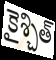
కైశ్చిత్